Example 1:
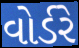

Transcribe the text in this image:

વોર્ડરે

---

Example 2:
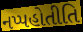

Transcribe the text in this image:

નપ્પહોતીતિ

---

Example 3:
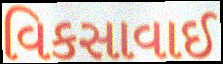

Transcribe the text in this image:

વિકસાવાઈ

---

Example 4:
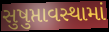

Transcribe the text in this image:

સુષુપ્તાવસ્થામાં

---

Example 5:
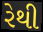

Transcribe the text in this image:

રેથી